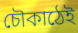
চৌকাঠেই